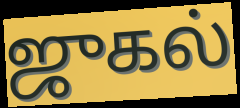
ஜுகல்